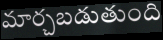
మార్చబడుతుంది